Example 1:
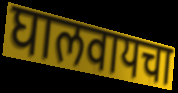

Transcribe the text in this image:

घालवायचा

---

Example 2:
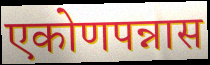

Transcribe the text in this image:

एकोणपन्नास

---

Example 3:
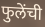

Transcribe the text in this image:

फुलेंची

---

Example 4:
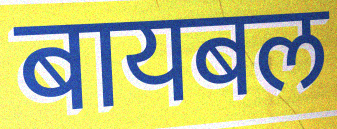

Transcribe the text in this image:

बायबल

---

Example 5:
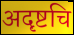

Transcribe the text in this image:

अदृष्टचि